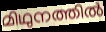
മിഥുനത്തിൽ